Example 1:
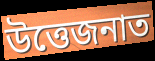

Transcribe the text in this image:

উত্তেজনাত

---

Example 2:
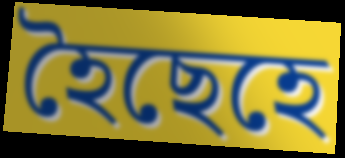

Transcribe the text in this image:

হৈছেহে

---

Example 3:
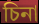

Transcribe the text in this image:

চিনা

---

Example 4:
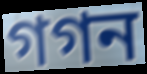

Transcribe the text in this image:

গগন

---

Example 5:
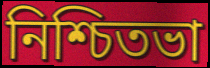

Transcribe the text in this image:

নিশ্চিতভা